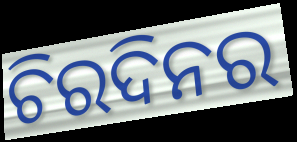
ଚିରଦିନର